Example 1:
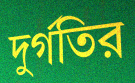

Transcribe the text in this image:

দুর্গতির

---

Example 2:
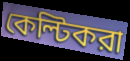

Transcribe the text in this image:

কেল্টিকরা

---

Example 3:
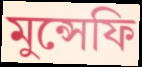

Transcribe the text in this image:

মুন্সেফি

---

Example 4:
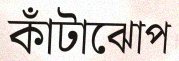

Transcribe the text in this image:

কাঁটাঝোপ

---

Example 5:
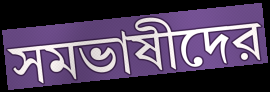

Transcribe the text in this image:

সমভাষীদের